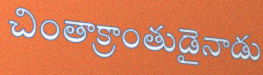
చింతాక్రాంతుడైనాడు